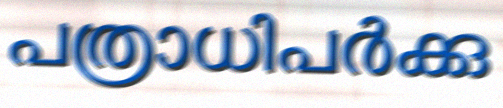
പത്രാധിപർക്കു